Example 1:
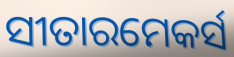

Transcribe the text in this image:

ସୀତାରମେକର୍ସ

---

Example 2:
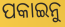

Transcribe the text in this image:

ପକାଇନୁ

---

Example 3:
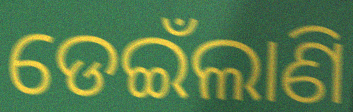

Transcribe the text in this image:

ଡେଇଁଲାଣି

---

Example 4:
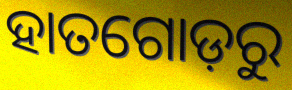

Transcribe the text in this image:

ହାତଗୋଡ଼ରୁ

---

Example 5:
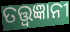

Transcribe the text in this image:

ତତ୍ତ୍ଵଜ୍ଞାନୀ